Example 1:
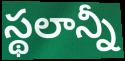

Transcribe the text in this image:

స్థలాన్నీ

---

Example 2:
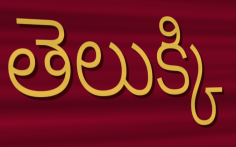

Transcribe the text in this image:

తెలుక్కి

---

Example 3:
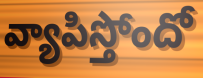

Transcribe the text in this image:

వ్యాపిస్తోందో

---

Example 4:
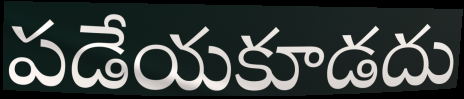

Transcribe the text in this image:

పడేయకూడదు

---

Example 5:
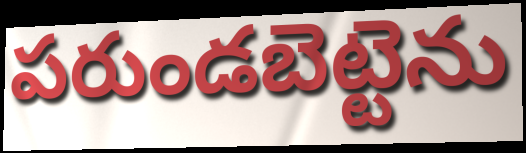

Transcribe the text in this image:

పరుండబెట్టెను